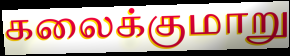
கலைக்குமாறு